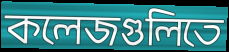
কলেজগুলিতে